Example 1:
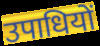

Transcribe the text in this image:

उपाधियों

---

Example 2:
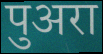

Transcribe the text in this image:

पुअरा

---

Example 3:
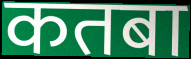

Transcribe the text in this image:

कतबा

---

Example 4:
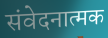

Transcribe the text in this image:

संवेदनात्मक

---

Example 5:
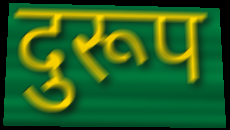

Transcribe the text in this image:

दुरूप